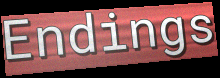
Endings